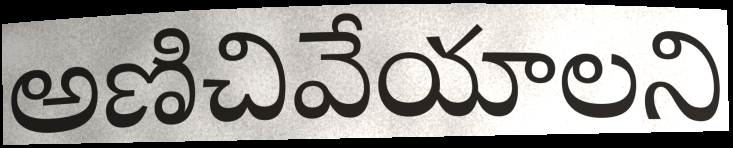
అణిచివేయాలని